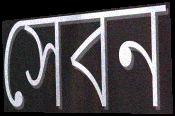
সেবন